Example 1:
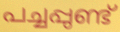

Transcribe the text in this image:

പച്ചപ്പുണ്ട്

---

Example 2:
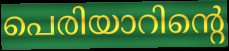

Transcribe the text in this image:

പെരിയാറിന്റെ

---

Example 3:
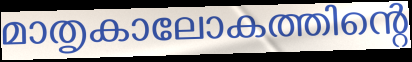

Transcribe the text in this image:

മാതൃകാലോകത്തിന്റെ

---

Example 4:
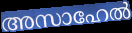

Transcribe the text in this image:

അസാഹേൽ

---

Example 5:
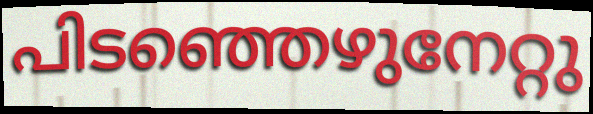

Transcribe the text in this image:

പിടഞ്ഞെഴുനേറ്റു